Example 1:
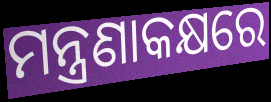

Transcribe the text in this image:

ମନ୍ତ୍ରଣାକକ୍ଷରେ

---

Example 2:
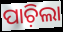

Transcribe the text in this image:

ପାଚ଼ିଲା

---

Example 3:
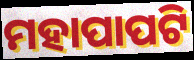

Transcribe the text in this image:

ମହାପାପଟି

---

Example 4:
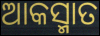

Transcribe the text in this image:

ଆକସ୍ମାତ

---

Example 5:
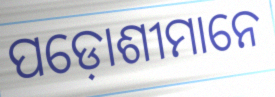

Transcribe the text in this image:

ପଡ଼ୋଶୀମାନେ